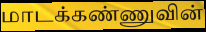
மாடக்கண்ணுவின்